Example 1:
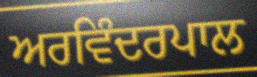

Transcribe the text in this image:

ਅਰਵਿੰਦਰਪਾਲ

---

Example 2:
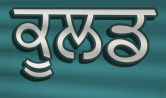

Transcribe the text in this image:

ਕੂਲਡ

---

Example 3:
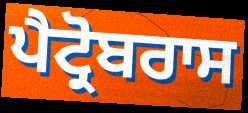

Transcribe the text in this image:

ਪੈਟ੍ਰੋਬਰਾਸ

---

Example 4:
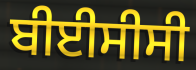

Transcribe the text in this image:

ਬੀਈਸੀਸੀ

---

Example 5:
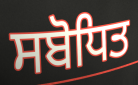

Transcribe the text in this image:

ਸਬੋਧਿਤ